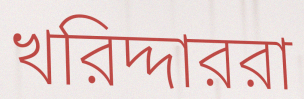
খরিদ্দাররা